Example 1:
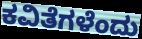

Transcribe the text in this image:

ಕವಿತೆಗಳೆಂದು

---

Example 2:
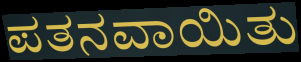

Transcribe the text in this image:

ಪತನವಾಯಿತು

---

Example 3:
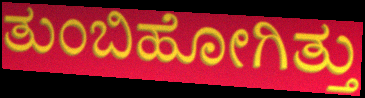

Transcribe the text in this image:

ತುಂಬಿಹೋಗಿತ್ತು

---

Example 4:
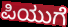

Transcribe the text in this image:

ಪಿಯುಗೆ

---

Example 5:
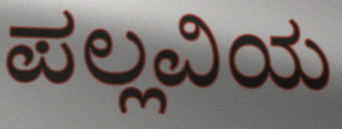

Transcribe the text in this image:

ಪಲ್ಲವಿಯ